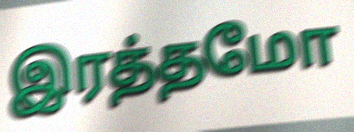
இரத்தமோ